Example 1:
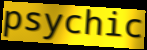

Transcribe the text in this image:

psychic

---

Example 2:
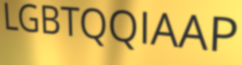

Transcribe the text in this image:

LGBTQQIAAP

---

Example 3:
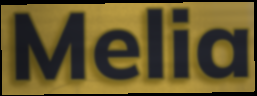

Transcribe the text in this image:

Melia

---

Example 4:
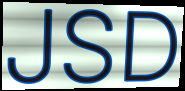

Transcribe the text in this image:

JSD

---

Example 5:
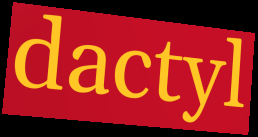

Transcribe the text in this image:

dactyl